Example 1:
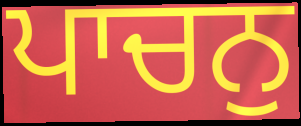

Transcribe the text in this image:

ਪਾਚਨੁ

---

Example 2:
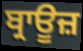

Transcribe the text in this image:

ਬ੍ਰਾਊਜ਼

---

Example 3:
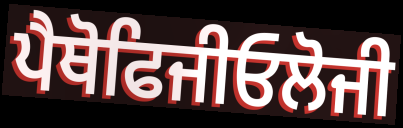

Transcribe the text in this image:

ਪੈਥੋਫਿਜੀਓਲੋਜੀ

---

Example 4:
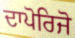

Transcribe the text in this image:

ਦਾਪੋਰਿਜੋ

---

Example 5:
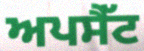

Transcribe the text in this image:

ਅਪਸੈੱਟ